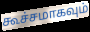
கூச்சமாகவும்